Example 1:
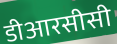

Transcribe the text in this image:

डीआरसीसी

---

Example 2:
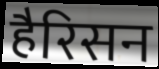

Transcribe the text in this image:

हैरिसन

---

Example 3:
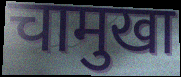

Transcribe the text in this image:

चामुखा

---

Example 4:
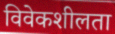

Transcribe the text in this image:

विवेकशीलता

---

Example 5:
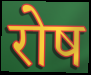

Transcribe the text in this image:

रोष